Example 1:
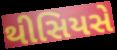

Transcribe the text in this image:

થીસિયસે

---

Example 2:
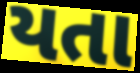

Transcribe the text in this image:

યતા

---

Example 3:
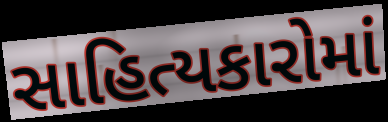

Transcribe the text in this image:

સાહિત્યકારોમાં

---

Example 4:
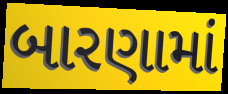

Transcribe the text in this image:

બારણામાં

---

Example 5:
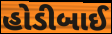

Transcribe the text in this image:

હોડીબાઈ